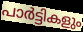
പാർട്ടികളും